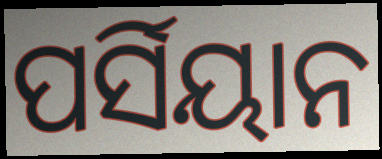
ପର୍ସିୟାନ